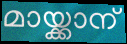
മായ്ക്കാന്